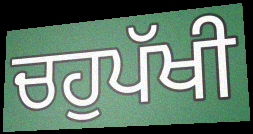
ਚਹੁਪੱਖੀ